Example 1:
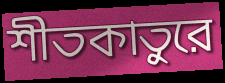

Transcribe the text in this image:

শীতকাতুরে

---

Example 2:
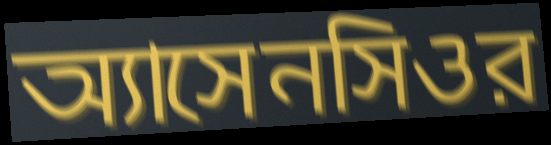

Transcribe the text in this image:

অ্যাসেনসিওর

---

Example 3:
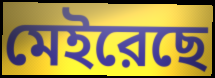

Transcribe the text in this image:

মেইরেছে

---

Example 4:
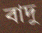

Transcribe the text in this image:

বাদু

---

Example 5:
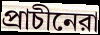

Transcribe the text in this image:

প্রাচীনেরা